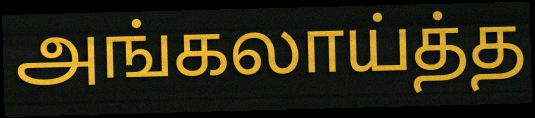
அங்கலாய்த்த